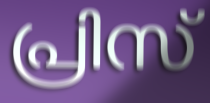
പ്രിസ്